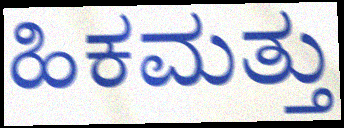
ಹಿಕಮತ್ತು